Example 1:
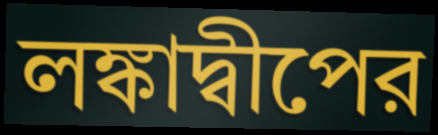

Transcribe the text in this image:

লঙ্কাদ্বীপের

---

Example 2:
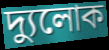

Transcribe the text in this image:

দ্যুলোক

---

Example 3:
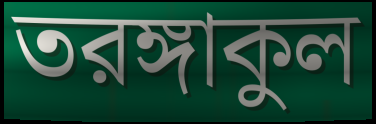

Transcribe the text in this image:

তরঙ্গাকুল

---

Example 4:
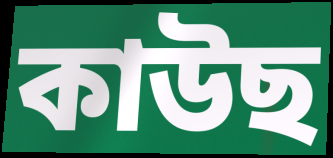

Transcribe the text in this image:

কাউছ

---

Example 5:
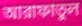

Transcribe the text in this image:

আরাফাতুল